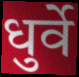
धुर्वे